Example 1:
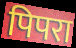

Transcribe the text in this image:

पिपरा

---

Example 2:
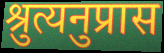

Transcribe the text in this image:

श्रुत्यनुप्रास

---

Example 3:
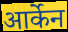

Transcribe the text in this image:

आर्केन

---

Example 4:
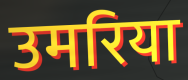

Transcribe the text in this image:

उमरिया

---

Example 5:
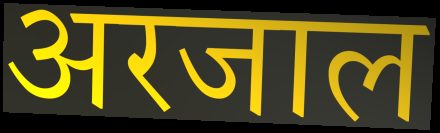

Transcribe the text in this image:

अरजाल